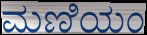
ಮಣಿಯಂ